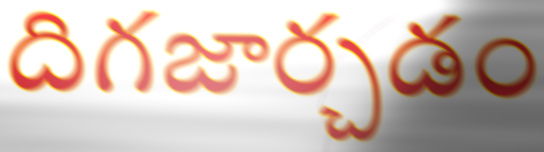
దిగజార్చడం